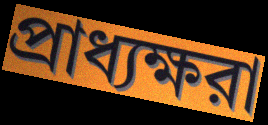
প্রাধ্যক্ষরা